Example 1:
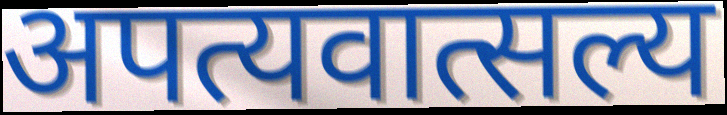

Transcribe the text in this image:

अपत्यवात्सल्य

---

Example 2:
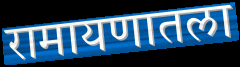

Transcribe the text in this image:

रामायणातला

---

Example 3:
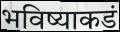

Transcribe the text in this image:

भविष्याकडं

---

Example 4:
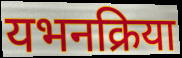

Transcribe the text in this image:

यभनक्रिया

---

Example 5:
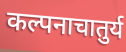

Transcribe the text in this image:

कल्पनाचातुर्य